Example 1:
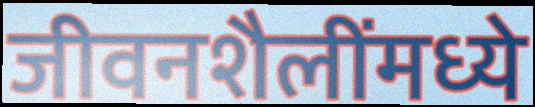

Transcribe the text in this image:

जीवनशैलींमध्ये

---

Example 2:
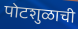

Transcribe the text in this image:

पोटशुळाची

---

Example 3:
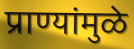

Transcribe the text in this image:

प्राण्यांमुळे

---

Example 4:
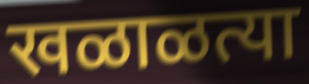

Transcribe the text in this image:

खळाळत्या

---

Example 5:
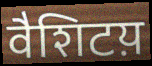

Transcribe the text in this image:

वैशिटय़